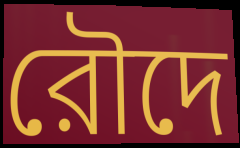
রৌদে